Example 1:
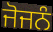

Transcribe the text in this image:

ਜੋਜਨੰ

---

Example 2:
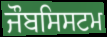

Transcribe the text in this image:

ਜੌਬਸਿਸਟਮ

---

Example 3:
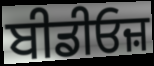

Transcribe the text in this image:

ਬੀਡੀਓਜ਼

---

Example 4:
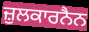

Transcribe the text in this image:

ਜ਼ੁਲਕਾਰਨੈਨ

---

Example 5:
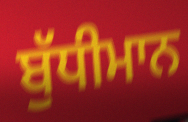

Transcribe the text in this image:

ਬੁੱਧੀਮਾਨ